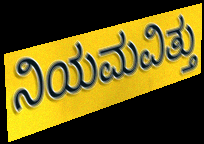
ನಿಯಮವಿತ್ತು